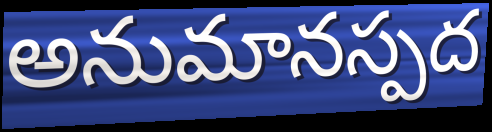
అనుమానస్పద